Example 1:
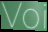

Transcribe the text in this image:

Voi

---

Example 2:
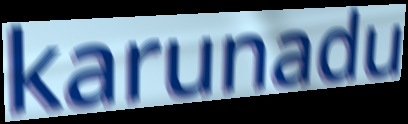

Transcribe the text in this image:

karunadu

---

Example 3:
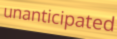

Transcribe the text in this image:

unanticipated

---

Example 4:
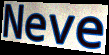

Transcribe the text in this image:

Neve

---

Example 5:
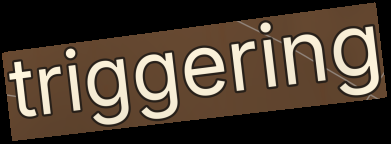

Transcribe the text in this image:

triggering